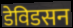
डेविडसन